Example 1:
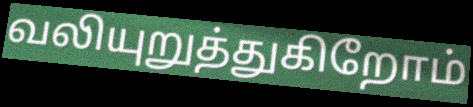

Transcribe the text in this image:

வலியுறுத்துகிறோம்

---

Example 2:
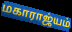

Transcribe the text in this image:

மகாராஜ்யம்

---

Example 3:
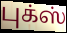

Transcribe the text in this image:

புக்ஸ்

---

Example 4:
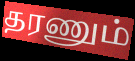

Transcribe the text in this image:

தரணும்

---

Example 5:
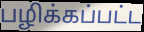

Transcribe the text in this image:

பழிக்கப்பட்ட